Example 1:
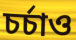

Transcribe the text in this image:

চৰ্চাও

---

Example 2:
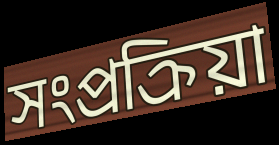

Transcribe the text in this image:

সংপ্ৰক্ৰিয়া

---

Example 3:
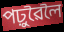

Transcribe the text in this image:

পঢ়ুৱৈলৈ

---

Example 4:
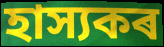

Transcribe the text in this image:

হাস্যকৰ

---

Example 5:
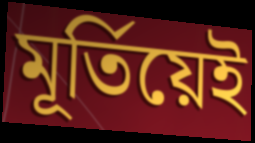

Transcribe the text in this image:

মূৰ্তিয়েই